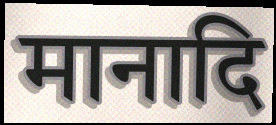
मानादि